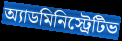
অ্যাডমিনিস্ট্রেটিভ